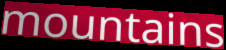
mountains